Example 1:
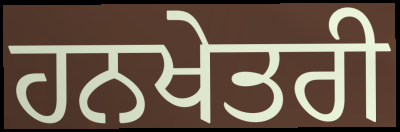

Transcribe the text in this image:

ਹਨਖੇਤਰੀ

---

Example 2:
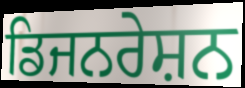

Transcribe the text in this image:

ਡਿਜਨਰੇਸ਼ਨ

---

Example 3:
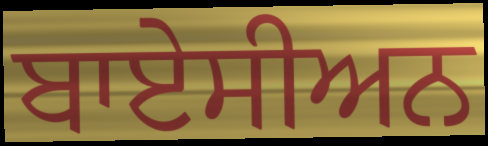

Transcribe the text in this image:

ਬਾਏਸੀਅਨ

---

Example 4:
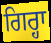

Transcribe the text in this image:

ਗਿਰ੍ਹਾ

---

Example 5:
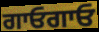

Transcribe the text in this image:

ਗਾਓਗਾਓ